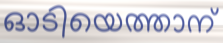
ഓടിയെത്താന്